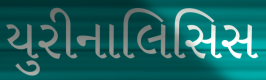
યુરીનાલિસિસ